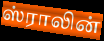
ஸ்ராலின்